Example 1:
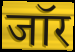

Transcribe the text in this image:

जॉर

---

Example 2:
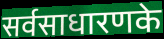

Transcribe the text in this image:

सर्वसाधारणके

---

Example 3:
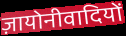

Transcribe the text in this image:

ज़ायोनीवादियों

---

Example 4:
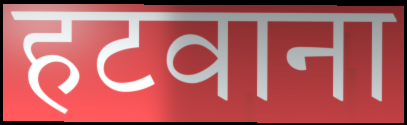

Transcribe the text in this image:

हटवाना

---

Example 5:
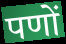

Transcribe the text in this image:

पणों